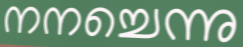
നനച്ചെന്നു